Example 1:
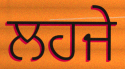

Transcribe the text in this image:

ਲਹਜੇ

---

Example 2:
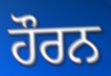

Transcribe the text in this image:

ਹੌਰਨ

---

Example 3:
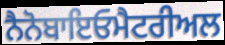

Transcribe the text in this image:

ਨੈਨੋਬਾਇਓਮੈਟਰੀਅਲ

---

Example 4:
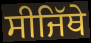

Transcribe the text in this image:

ਸੀਜਿੱਥੇ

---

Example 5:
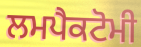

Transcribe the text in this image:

ਲਮਪੈਕਟੋਮੀ